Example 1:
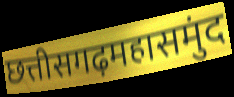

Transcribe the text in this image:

छत्तीसगढ़महासमुंद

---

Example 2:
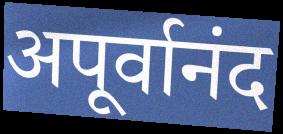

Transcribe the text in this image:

अपूर्वानंद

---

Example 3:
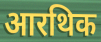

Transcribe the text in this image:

आरथिक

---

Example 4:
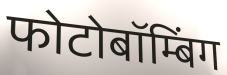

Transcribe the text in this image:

फोटोबॉम्बिंग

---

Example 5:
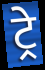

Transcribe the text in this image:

ट्रे